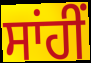
ਸਾਂਹੀਂ